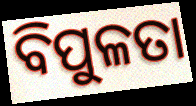
ବିପୁଳତା